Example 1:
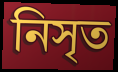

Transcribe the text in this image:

নিসৃত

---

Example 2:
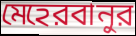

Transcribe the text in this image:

মেহেরবানুর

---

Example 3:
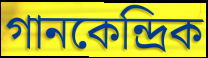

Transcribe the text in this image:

গানকেন্দ্রিক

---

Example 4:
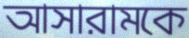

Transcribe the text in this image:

আসারামকে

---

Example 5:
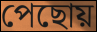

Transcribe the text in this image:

পেছোয়